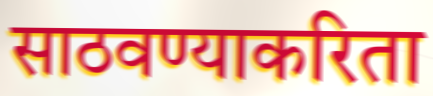
साठवण्याकरिता